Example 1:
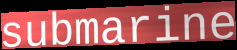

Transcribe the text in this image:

submarine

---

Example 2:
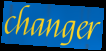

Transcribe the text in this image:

changer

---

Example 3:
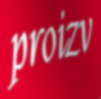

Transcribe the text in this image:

proizv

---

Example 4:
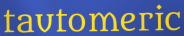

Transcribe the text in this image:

tautomeric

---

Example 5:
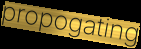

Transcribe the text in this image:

propogating